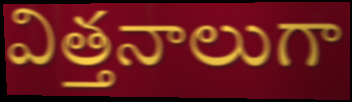
విత్తనాలుగా